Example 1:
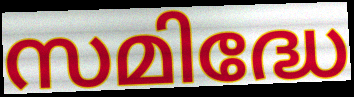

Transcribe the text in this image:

സമിദ്ധേ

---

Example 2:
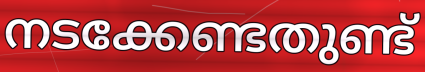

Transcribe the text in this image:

നടക്കേണ്ടതുണ്ട്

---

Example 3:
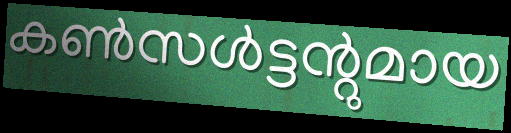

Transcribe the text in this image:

കൺസൾട്ടന്റുമായ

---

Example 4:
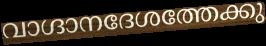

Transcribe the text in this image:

വാഗ്ദാനദേശത്തേക്കു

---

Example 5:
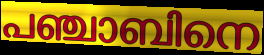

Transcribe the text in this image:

പഞ്ചാബിനെ